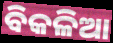
ବିକଳିଆ